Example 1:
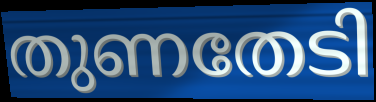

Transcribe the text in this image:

തുണതേടി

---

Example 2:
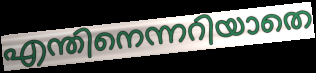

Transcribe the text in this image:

എന്തിനെന്നറിയാതെ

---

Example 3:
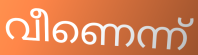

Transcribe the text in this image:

വീണെന്ന്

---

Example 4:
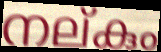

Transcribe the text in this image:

നല്‌കും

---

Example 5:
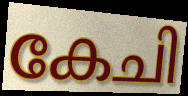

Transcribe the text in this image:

കേചി